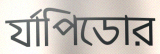
র্যাপিডোর